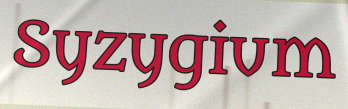
Syzygium